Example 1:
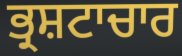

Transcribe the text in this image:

ਭ੍ਰਸ਼ਟਾਚਾਰ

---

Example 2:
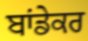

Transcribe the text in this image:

ਬਾਂਡੇਕਰ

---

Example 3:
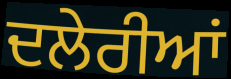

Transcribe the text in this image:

ਦਲੇਰੀਆਂ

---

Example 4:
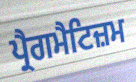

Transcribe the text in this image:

ਪ੍ਰੈਗਮੈਟਿਜ਼ਮ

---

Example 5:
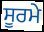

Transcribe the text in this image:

ਸੂਰਮੇ